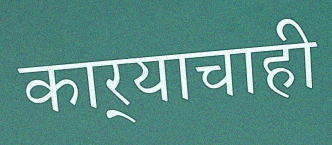
कार्याचाही